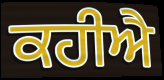
ਕਹੀਐ